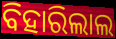
ବିହାରିଲାଲ